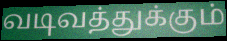
வடிவத்துக்கும்